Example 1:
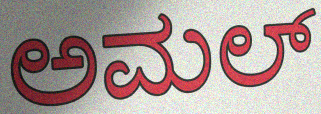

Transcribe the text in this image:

ಅಮಲ್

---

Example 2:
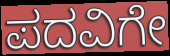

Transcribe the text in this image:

ಪದವಿಗೇ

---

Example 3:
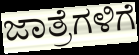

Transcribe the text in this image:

ಜಾತ್ರೆಗಳಿಗೆ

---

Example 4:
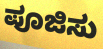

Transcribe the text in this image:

ಪೂಜಿಸು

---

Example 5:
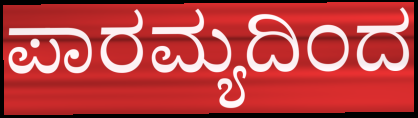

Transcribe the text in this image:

ಪಾರಮ್ಯದಿಂದ